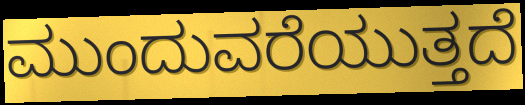
ಮುಂದುವರೆಯುತ್ತದೆ